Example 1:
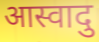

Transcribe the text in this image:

आस्वादु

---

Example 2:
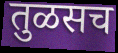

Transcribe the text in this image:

तुळसच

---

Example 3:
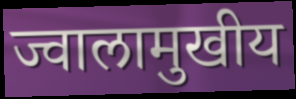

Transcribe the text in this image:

ज्वालामुखीय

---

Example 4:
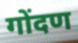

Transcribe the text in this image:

गोंदण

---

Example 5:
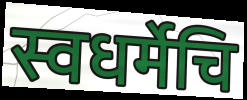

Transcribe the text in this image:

स्वधर्मेचि